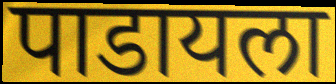
पाडायला